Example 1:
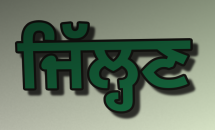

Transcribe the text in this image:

ਜਿੱਲ੍ਹਣ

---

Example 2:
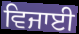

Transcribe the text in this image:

ਵਿਜਾਈ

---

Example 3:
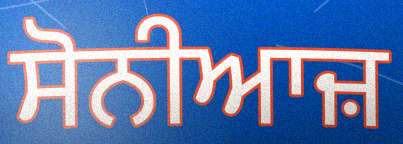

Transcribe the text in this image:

ਸੋਨੀਆਜ਼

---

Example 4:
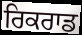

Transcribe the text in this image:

ਰਿਕਰਾਡ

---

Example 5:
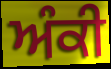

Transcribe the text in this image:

ਅੰਕੀ